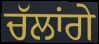
ਚੱਲਾਂਗੇ